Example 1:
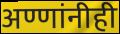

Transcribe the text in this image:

अण्णांनीही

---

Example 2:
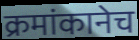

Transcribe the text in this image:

क्रमांकानेच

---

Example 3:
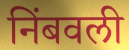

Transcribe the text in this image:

निंबवली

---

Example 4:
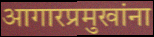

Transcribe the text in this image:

आगारप्रमुखांना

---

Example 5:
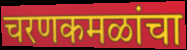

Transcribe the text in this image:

चरणकमळांचा